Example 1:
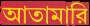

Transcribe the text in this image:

আতামারি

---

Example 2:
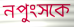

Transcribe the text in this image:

নপুংসকে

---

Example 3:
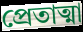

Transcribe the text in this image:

প্রেতাত্মা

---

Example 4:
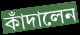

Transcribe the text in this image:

কাঁদালেন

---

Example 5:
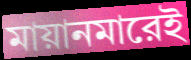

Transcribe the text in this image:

মায়ানমারেই